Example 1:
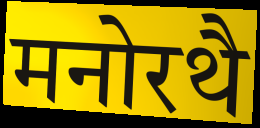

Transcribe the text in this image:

मनोरथै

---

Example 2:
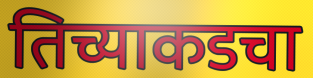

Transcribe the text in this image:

तिच्याकडचा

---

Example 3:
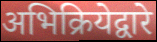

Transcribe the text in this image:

अभिक्रियेद्वारे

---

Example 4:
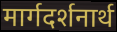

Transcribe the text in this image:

मार्गदर्शनार्थ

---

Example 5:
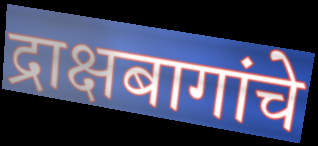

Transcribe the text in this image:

द्राक्षबागांचे